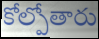
కోల్పోతారు